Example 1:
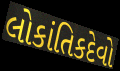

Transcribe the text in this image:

લોકાંતિકદેવો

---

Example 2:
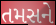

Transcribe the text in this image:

તમસને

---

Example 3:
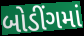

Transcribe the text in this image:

બોડીંગમાં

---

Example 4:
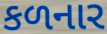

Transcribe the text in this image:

કળનાર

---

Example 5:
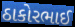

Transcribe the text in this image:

ઠાકોરભાઈ